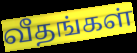
வீதங்கள்